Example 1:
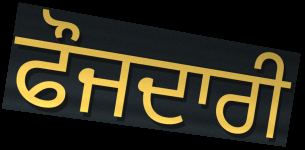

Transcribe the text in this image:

ਫੌਜਦਾਰੀ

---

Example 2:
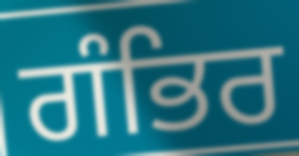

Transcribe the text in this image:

ਗੰਭਿਰ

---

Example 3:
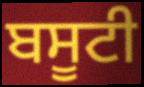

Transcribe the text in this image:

ਬਸੂਟੀ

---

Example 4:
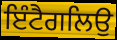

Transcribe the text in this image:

ਇੰਟੈਗਲਿਉ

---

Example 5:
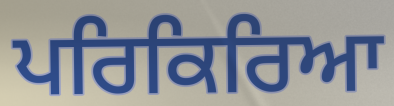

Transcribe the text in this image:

ਪਰਿਕਿਰਿਆ